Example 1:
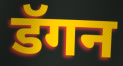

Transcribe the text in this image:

डॅगन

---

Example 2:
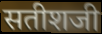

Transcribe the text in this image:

सतीशजी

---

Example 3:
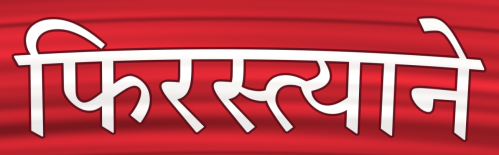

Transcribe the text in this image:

फिरस्त्याने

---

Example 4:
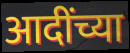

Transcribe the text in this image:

आदींच्या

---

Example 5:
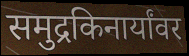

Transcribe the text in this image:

समुद्रकिनार्यांवर